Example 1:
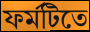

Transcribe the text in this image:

ফর্মটিতে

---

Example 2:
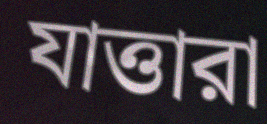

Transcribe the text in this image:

যাত্তারা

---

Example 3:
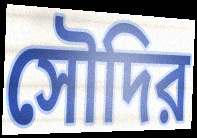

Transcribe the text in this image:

সৌদির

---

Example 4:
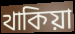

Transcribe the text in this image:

থাকিয়া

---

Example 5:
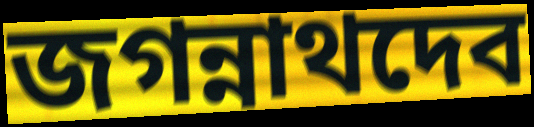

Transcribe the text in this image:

জগন্নাথদেব